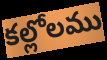
కల్లోలము